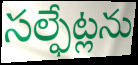
సల్ఫేట్లను